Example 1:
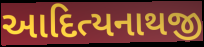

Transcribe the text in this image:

આદિત્યનાથજી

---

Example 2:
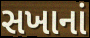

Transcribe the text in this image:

સખાનાં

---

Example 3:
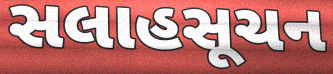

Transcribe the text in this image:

સલાહસૂચન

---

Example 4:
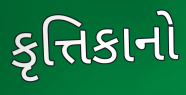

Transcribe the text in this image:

કૃત્તિકાનો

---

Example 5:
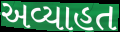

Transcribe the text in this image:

અવ્યાહત